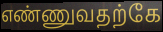
எண்ணுவதற்கே